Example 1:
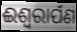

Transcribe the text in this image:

ଈଶ୍ୱରାର୍ପଣ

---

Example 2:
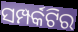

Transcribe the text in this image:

ସମ୍ପର୍କଟିର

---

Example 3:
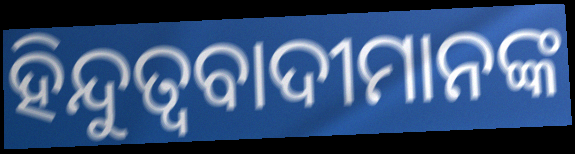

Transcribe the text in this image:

ହିନ୍ଦୁତ୍ଵବାଦୀମାନଙ୍କ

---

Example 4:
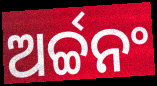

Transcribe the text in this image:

ଅର୍ଚ୍ଚନଂ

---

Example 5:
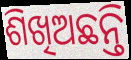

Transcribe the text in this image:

ଶିଖିଅଛନ୍ତି